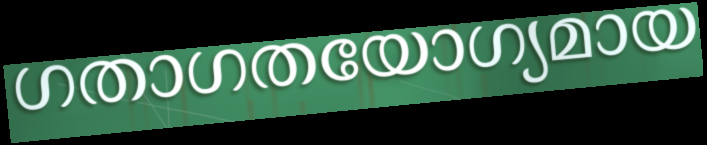
ഗതാഗതയോഗ്യമായ